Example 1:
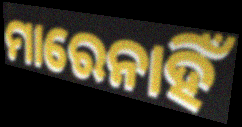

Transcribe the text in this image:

ମାରେନାହିଁ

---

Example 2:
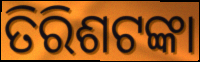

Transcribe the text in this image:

ତିରିଶଟଙ୍କା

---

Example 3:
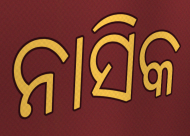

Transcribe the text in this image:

ନାସିକ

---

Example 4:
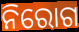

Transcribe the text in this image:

ନିରୋଗ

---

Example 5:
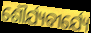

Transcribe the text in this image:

ଶୌର୍ଯ୍ୟବୀର୍ଯ୍ୟେ